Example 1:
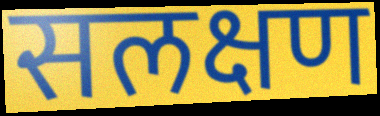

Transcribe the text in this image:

सलक्षण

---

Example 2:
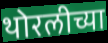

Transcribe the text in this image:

थोरलीच्या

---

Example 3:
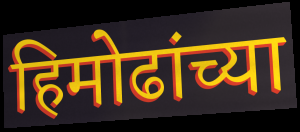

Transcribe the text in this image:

हिमोढांच्या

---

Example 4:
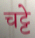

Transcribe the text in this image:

चट्टे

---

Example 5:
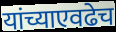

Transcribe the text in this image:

यांच्याएवढेच